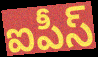
ఐపీస్